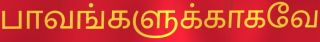
பாவங்களுக்காகவே